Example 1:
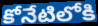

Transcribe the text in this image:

కోనేటిలోకి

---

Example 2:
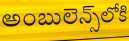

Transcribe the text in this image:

అంబులెన్స్‌లోకి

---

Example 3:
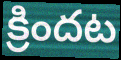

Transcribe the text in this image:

క్రిందట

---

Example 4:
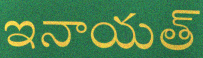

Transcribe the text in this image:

ఇనాయత్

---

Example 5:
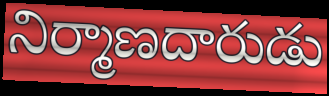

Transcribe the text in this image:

నిర్మాణదారుడు